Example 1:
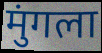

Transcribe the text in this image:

मुंगला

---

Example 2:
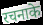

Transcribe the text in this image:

रचनाके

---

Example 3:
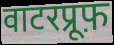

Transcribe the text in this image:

वाटरप्रूफ़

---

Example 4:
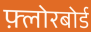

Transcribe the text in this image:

फ़्लोरबोर्ड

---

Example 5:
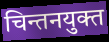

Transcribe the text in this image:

चिन्तनयुक्त